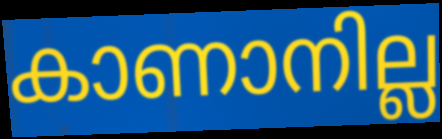
കാണാനില്ല